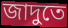
জাদুতে